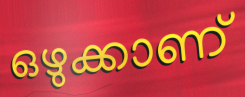
ഒഴുക്കാണ്